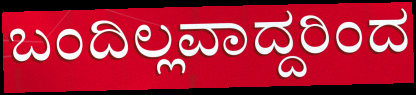
ಬಂದಿಲ್ಲವಾದ್ದರಿಂದ